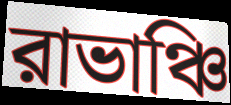
রাভাঞ্চি